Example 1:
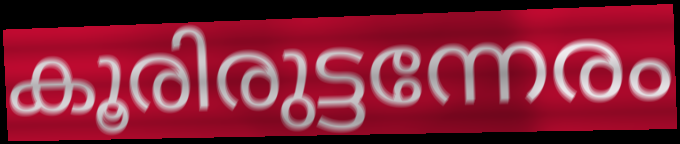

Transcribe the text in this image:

കൂരിരുട്ടന്നേരം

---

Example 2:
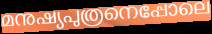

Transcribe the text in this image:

മനുഷ്യപുത്രനെപ്പോലെ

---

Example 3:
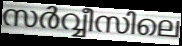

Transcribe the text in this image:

സർവ്വീസിലെ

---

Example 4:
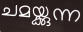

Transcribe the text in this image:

ചമയ്ക്കുന്ന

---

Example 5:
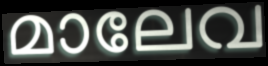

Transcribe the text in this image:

മാലേവ